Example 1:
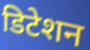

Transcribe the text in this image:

डिटेशन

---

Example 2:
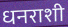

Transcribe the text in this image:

धनराशी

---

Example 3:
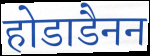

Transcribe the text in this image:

होडाडैनन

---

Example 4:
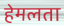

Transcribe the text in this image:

हेमलता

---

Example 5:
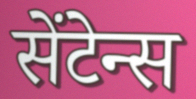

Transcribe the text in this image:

सेंटेन्स